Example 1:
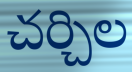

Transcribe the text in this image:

చర్చిల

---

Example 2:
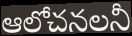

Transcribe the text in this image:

ఆలోచనలనీ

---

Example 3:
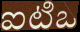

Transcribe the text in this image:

ఐటిఒ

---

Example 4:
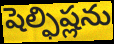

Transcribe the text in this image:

షెల్ఫిష్లను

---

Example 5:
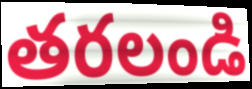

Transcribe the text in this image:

తరలండి